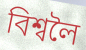
বিশ্বলৈ